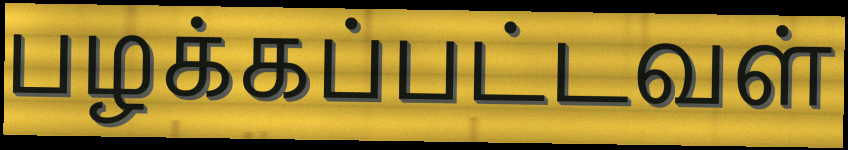
பழக்கப்பட்டவள்